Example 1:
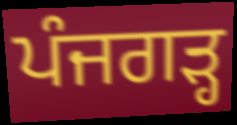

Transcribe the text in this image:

ਪੰਜਗੜ੍ਹ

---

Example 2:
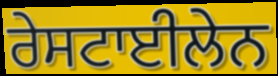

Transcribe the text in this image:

ਰੇਸਟਾਈਲੇਨ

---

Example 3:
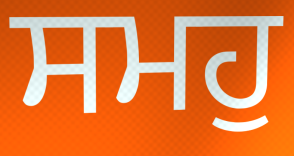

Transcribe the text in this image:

ਸਮਹੁ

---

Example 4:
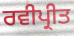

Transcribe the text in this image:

ਰਵੀਪ੍ਰੀਤ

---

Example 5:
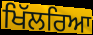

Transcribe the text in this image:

ਖਿੱਲਰਿਆ